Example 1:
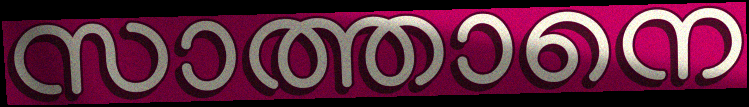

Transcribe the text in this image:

സാത്താനെ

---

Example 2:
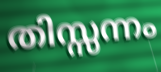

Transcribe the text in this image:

തിസ്സന്നം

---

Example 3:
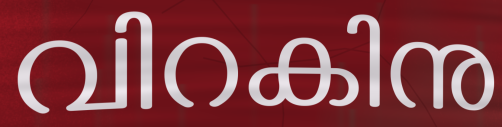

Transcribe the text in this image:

വിറകിനു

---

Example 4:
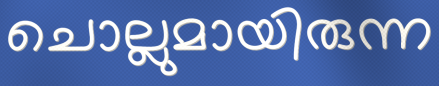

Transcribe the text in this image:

ചൊല്ലുമായിരുന്ന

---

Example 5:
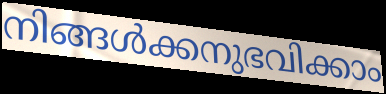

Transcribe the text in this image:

നിങ്ങൾക്കനുഭവിക്കാം